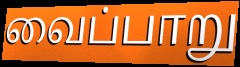
வைப்பாறு